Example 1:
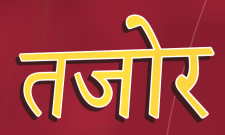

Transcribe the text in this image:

तजोर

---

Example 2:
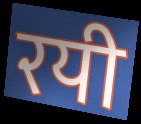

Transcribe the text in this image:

रयी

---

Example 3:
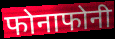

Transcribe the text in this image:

फोनाफोनी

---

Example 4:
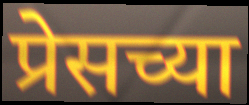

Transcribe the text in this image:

प्रेसच्या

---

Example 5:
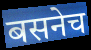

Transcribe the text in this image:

बसनेच